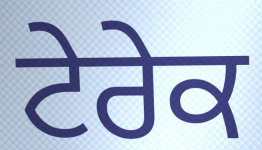
ਟੇਰੇਕ